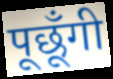
पूछूँगी